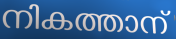
നികത്താന്